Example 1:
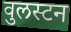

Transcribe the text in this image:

वुलस्टन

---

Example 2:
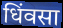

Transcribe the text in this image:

धिंवसा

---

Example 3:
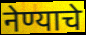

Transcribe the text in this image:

नेण्याचे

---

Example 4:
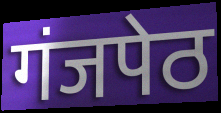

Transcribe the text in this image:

गंजपेठ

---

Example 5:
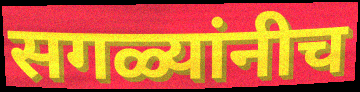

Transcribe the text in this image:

सगळ्यांनीच